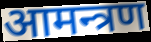
आमन्त्रण